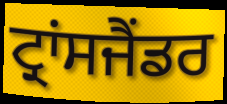
ਟ੍ਰਾਂਸਜੈਂਡਰ